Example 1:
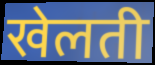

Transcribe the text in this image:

खेलती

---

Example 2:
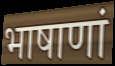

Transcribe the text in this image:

भाषाणां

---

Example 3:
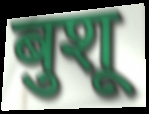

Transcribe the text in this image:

बुशू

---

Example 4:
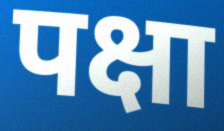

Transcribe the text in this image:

पक्षा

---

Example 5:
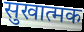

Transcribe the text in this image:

सुखात्मक